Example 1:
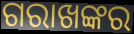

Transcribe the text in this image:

ଗରାଖଙ୍କର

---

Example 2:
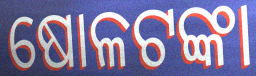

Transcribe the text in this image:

ଷୋଳଟଙ୍କା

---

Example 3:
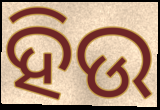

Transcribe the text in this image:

ହିଉ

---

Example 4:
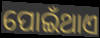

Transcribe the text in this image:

ପୋଇଁଥାଏ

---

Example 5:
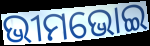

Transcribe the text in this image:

ଭୀମଭୋଇ